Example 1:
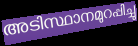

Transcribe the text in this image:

അടിസ്ഥാനമുറപ്പിച്ചു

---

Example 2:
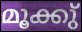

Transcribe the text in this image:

മൂക്കു്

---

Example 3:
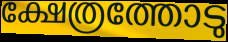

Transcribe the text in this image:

ക്ഷേത്രത്തോടു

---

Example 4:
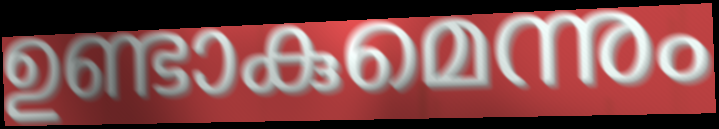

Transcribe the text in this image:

ഉണ്ടാകുമെന്നും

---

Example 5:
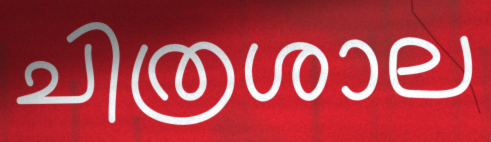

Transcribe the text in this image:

ചിത്രശാല